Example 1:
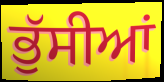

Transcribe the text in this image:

ਭੁੱਸੀਆਂ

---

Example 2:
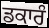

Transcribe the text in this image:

ਡਕਾਰੰ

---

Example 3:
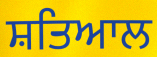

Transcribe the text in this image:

ਸ਼ਤਿਆਲ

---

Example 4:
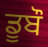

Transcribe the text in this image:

ਡੂਬੌ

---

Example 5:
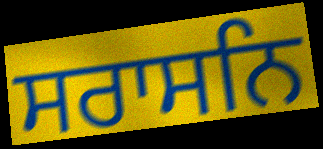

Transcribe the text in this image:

ਸਰਾਸਨਿ